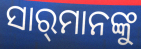
ସାର୍‌ମାନଙ୍କୁ